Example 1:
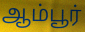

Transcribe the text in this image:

ஆம்பூர்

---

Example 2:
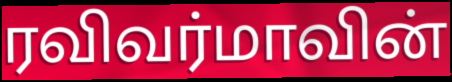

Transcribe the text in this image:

ரவிவர்மாவின்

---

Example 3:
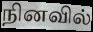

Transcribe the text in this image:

நினவில்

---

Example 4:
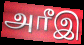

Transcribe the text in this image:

அரீஇ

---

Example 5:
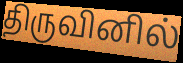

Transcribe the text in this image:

திருவினில்